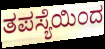
ತಪಸ್ಯೆಯಿಂದ